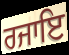
ਰਜਾਇ